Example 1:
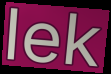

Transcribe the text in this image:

lek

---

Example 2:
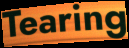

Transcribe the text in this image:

Tearing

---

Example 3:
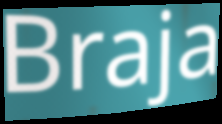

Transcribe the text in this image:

Braja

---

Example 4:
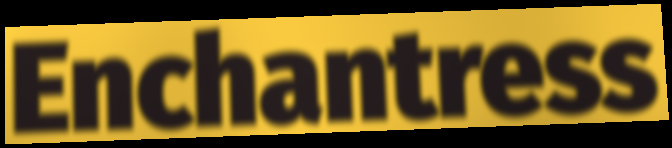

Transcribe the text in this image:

Enchantress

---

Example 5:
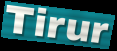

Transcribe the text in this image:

Tirur